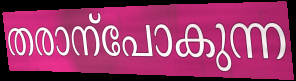
തരാന്പോകുന്ന